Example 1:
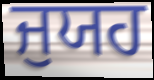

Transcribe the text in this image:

ਜੁਯਹ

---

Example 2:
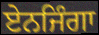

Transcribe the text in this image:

ਏਨਜਿੰਗਾ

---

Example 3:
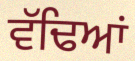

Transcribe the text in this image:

ਵੱਢਿਆਂ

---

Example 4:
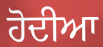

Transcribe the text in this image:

ਹੋਦੀਆ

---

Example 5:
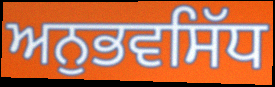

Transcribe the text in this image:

ਅਨੁਭਵਸਿੱਧ